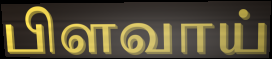
பிளவாய்